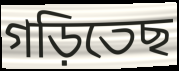
গড়িতেছ